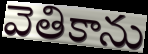
వెతికాను